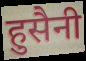
हुसैनी